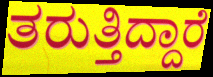
ತರುತ್ತಿದ್ದಾರೆ